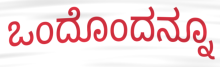
ಒಂದೊಂದನ್ನೂ